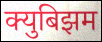
क्युबिझम